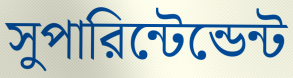
সুপারিন্টেন্ডেন্ট